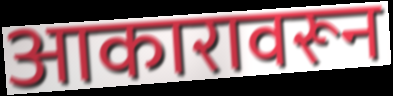
आकारावरून